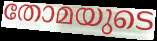
തോമയുടെ